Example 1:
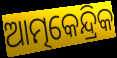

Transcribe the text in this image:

ଆତ୍ମକେନ୍ଦ୍ରିକ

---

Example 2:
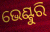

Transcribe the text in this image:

ଭେଣ୍ଟୁରି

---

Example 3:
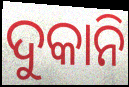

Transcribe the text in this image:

ଦୁକାନି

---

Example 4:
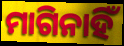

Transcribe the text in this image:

ମାଗିନାହିଁ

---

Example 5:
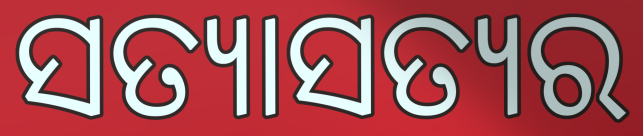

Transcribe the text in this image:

ସତ୍ୟାସତ୍ୟର